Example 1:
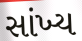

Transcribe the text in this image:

સાંખ્ય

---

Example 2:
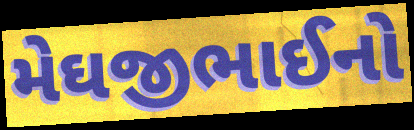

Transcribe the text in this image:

મેઘજીભાઈનો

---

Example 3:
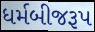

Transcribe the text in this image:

ધર્મબીજરૂપ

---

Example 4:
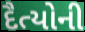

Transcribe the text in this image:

દૈત્યોની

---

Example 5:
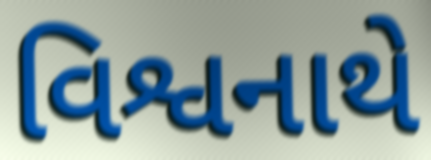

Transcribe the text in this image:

વિશ્વનાથે